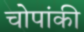
चोपांकी